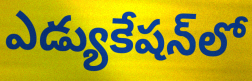
ఎడ్యుకేషన్‌లో